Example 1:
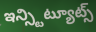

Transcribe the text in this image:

ఇన్స్టిట్యూట్స్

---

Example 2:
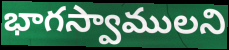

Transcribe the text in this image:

భాగస్వాములని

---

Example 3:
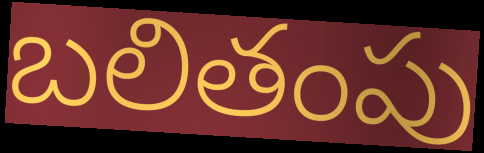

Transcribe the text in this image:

బలితంపు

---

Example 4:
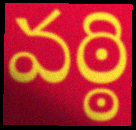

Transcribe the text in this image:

వఠ్ఠి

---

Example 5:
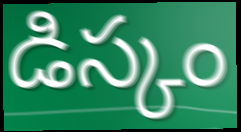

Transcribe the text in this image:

డిస్కం